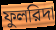
ফুলরিদা